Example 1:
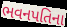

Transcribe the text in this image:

ભવનપતિના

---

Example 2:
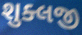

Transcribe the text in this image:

શુક્લજી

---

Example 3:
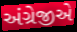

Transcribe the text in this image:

અંગ્રેજીએ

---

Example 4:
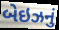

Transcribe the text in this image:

બેઇઝનું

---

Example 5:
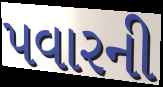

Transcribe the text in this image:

પવારની